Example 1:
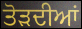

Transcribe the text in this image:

ਤੋੜਦੀਆਂ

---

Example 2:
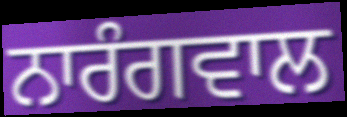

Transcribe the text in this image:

ਨਾਰੰਗਵਾਲ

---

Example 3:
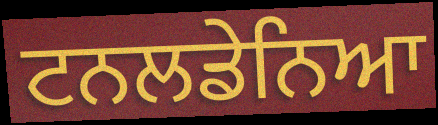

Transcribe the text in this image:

ਟਨਲਡੇਨਿਆ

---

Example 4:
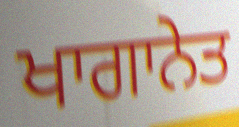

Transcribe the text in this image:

ਖਾਗਾਨੇਤ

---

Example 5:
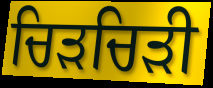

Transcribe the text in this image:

ਚਿੜਚਿੜੀ